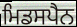
ਮਿਡਸਪੈਨ